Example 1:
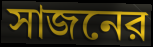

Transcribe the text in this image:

সাজনের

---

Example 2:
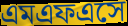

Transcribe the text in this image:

এমএফএসে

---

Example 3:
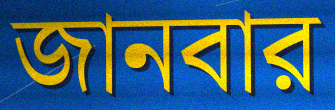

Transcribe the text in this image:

জানবার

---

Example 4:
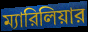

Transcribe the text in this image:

ম্যারিলিয়ার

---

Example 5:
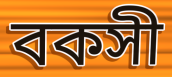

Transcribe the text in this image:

বকসী